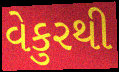
વેકુરથી